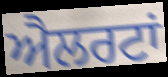
ਐਲਰਟਾਂ